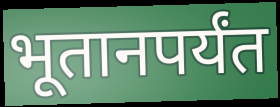
भूतानपर्यंत